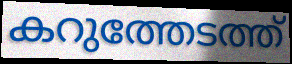
കറുത്തേടത്ത്